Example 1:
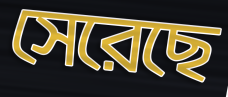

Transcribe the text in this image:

সেরেছে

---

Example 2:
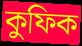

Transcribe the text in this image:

কুফিক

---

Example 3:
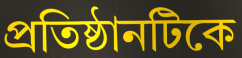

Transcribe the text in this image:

প্রতিষ্ঠানটিকে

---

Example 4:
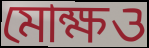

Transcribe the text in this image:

মোক্ষও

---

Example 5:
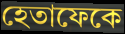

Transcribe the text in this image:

হেতাফেকে